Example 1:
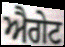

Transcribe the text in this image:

ਐਗੇਟ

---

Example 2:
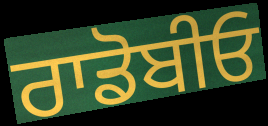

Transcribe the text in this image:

ਰਾਡੋਬੀਓ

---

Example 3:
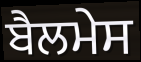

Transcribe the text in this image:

ਬੈਲਮੇਸ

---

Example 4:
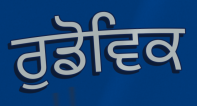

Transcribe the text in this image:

ਰੁਡੋਵਿਕ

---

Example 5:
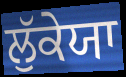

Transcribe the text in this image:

ਲੁੱਕੇਯਾ